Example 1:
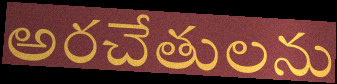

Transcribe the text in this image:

అరచేతులను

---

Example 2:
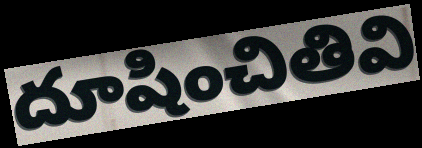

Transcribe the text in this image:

దూషించితివి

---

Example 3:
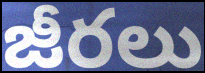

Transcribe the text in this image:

జీరలు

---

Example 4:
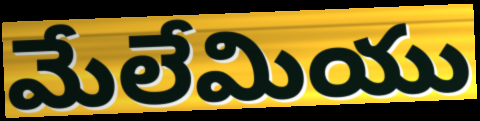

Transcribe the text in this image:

మేలేమియు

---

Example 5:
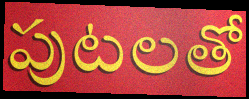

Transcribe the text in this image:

పుటలతో